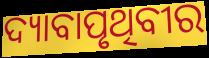
ଦ୍ୟାବାପୃଥିବୀର